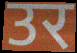
उर